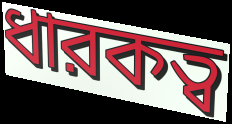
ধারকত্ব